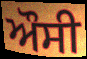
ਔਸੀ